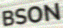
BSON